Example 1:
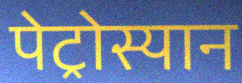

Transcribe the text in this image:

पेट्रोस्यान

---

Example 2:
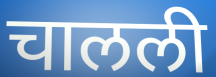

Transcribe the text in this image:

चालली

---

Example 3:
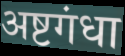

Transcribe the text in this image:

अष्टगंधा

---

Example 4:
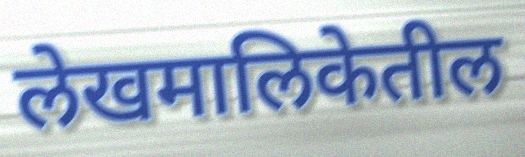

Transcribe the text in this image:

लेखमालिकेतील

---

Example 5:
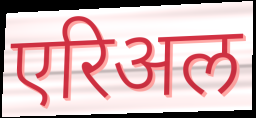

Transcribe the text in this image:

एरिअल